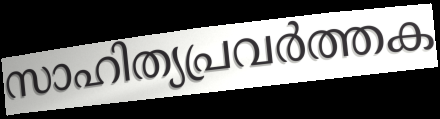
സാഹിത്യപ്രവർത്തക